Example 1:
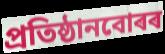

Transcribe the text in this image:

প্ৰতিষ্ঠানবোৰৰ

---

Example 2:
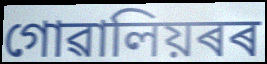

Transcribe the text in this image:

গোৱালিয়ৰৰ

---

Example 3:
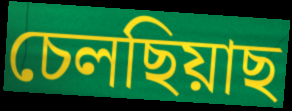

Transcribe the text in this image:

চেলছিয়াছ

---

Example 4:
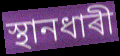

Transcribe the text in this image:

স্থানধাৰী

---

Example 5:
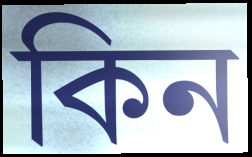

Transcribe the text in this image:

কিন